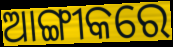
ଆଙ୍ଗୀକରେ